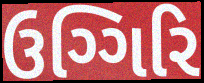
ઉગ્ગિરિ